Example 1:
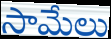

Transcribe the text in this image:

సామేలు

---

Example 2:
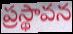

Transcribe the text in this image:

ప్రస్థావన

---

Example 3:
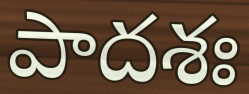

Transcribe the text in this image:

పాదశః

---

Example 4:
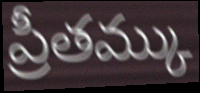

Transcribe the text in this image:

ప్రీతమ్కు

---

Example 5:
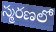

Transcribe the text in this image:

స్మరణలో